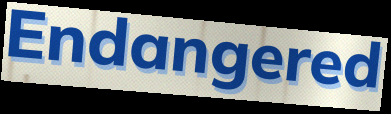
Endangered